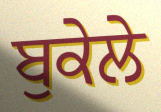
ਬੁਕੇਲੇ